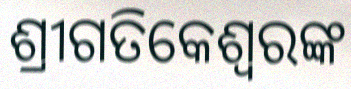
ଶ୍ରୀଗତିକେଶ୍ବରଙ୍କ